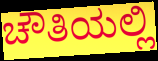
ಚೌತಿಯಲ್ಲಿ